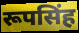
रूपसिंह